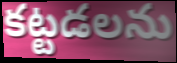
కట్టడలను